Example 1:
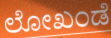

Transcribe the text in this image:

ಲೋಖಂಡೆ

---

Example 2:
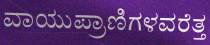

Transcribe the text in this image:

ವಾಯುಪ್ರಾಣಿಗಳವರೆತ್ತ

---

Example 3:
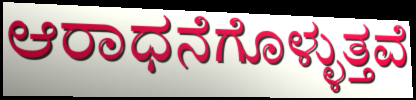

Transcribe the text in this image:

ಆರಾಧನೆಗೊಳ್ಳುತ್ತವೆ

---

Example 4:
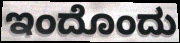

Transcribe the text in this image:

ಇಂದೊಂದು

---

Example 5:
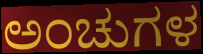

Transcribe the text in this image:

ಅಂಚುಗಳ